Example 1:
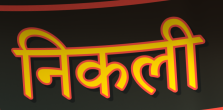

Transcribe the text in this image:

निकली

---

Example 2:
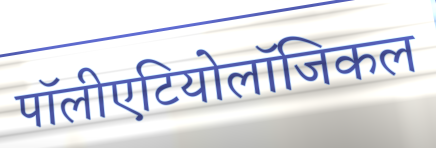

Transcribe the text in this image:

पॉलीएटियोलॉजिकल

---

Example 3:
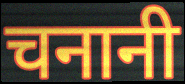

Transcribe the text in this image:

चनानी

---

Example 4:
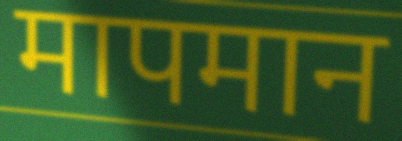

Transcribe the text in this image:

मापमान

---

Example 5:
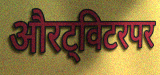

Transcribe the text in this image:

औरट्विटरपर